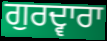
ਗੁਰਦ੍ਵਾਰਾ